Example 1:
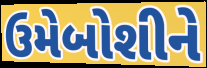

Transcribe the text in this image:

ઉમેબોશીને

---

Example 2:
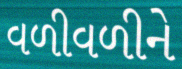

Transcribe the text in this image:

વળીવળીને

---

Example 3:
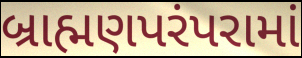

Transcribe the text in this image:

બ્રાહ્મણપરંપરામાં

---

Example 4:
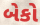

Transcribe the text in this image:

બેકો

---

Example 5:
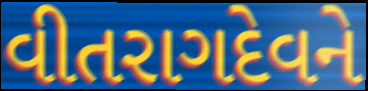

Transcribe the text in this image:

વીતરાગદેવને